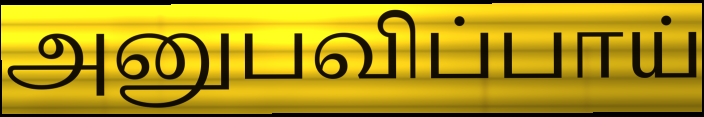
அனுபவிப்பாய்